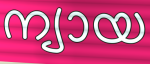
ന്യായ